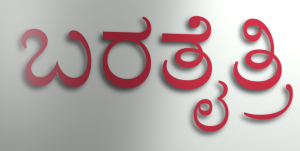
ಬರತೈತ್ರಿ